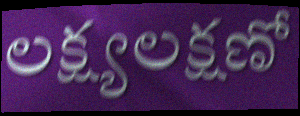
లక్ష్యలక్షణో